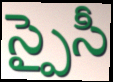
స్పైసీ